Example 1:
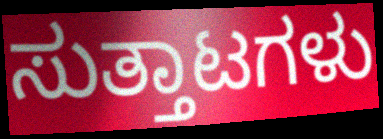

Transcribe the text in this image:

ಸುತ್ತಾಟಗಳು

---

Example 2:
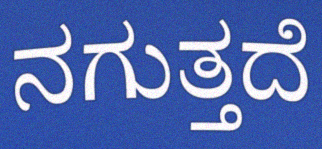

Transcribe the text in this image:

ನಗುತ್ತದೆ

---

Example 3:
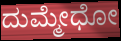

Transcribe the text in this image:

ದುಮ್ಮೇಧೋ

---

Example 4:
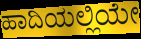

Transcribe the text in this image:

ಹಾದಿಯಲ್ಲಿಯೇ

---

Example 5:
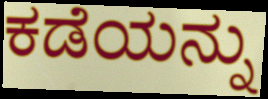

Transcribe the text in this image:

ಕಡೆಯನ್ನು